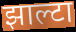
झाल्टा